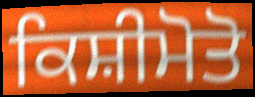
ਕਿਸ਼ੀਮੋਤੋ